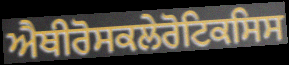
ਐਥੀਰੋਸਕਲੇਰੋਟਿਕਸਿਸ